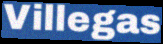
Villegas